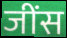
जींस